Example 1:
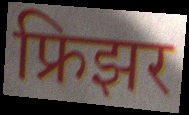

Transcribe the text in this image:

फ्रिझर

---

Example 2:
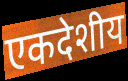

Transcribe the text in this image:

एकदेशीय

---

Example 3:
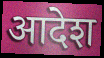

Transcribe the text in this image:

आदेश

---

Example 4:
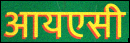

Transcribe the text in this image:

आयएसी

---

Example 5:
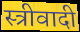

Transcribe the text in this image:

स्त्रीवादी